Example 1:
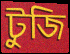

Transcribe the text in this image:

টুজি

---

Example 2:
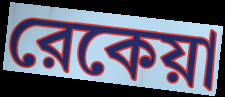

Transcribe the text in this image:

রেকেয়া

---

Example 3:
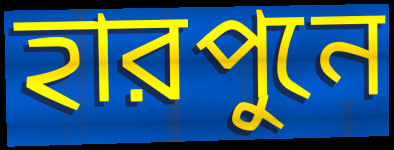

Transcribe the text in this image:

হারপুনে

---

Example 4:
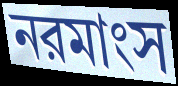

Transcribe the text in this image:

নরমাংস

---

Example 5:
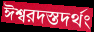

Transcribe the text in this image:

ঈশ্বরদস্তদর্থং